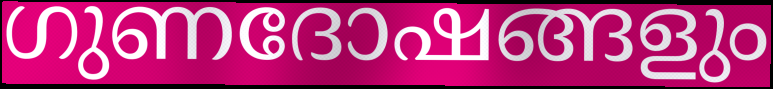
ഗുണദോഷങ്ങളും